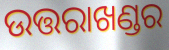
ଉତ୍ତରାଖଣ୍ଡର